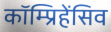
कॉम्प्रिहेंसिव